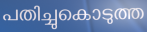
പതിച്ചുകൊടുത്ത